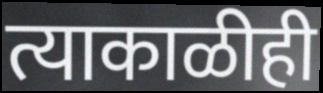
त्याकाळीही